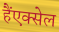
हैंएक्सेल